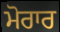
ਮੋਰਾਰ